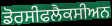
ਡੋਰਸੀਫਲੈਕਸੀਅਨ